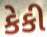
કેકી